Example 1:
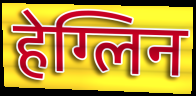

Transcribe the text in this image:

हेग्लिन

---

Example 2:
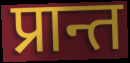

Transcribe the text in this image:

प्रान्त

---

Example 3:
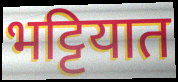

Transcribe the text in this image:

भट्टियात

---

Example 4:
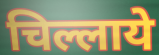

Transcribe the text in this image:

चिल्लाये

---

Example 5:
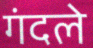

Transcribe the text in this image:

गंदले